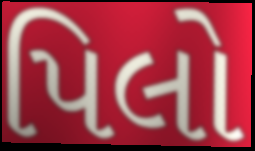
પિલો